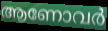
ആണോവർ